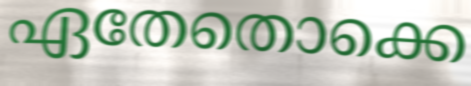
ഏതേതൊക്കെ